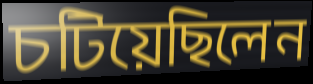
চটিয়েছিলেন